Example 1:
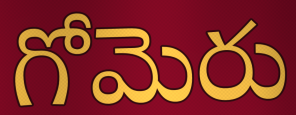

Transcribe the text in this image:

గోమెరు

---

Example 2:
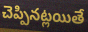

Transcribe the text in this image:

చెప్పినట్లయితే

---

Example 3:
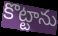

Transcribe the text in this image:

కొట్టాను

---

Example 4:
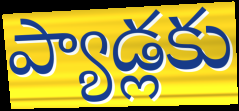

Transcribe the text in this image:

ప్యాడ్లకు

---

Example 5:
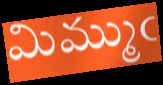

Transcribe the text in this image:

మిమ్ముఁ